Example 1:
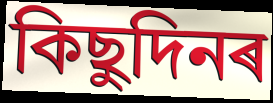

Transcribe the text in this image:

কিছুদিনৰ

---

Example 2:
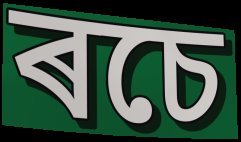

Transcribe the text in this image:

ৰচে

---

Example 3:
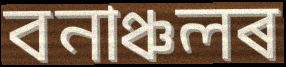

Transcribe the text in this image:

বনাঞ্চলৰ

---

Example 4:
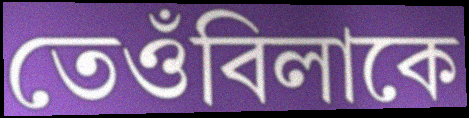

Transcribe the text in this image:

তেওঁবিলাকে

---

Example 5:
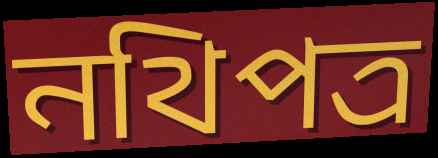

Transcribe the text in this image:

নথিপত্ৰ